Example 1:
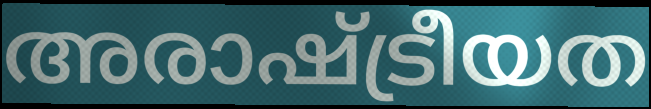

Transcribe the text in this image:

അരാഷ്ട്രീയത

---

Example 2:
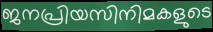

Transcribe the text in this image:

ജനപ്രിയസിനിമകളുടെ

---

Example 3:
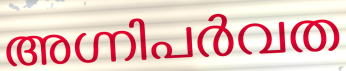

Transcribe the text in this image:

അഗ്നിപർവത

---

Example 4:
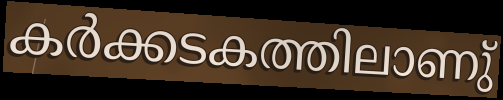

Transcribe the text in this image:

കർക്കടകത്തിലാണു്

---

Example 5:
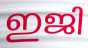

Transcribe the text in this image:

ഇജി